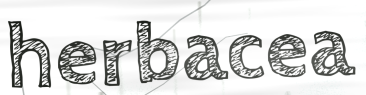
herbacea